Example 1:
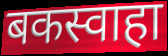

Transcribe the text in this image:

बकस्वाहा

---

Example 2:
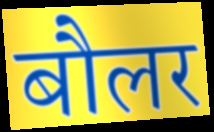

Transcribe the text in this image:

बौलर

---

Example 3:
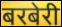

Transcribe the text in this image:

बरबेरी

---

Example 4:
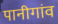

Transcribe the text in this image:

पानीगांव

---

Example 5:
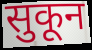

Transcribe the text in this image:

सुकून